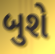
બુશે